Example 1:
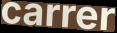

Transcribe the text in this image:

carrer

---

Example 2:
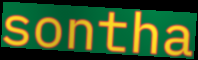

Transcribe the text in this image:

sontha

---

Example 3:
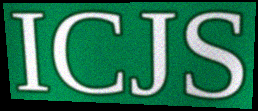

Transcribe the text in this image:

ICJS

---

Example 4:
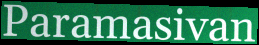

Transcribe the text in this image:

Paramasivan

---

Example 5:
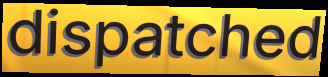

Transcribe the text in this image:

dispatched